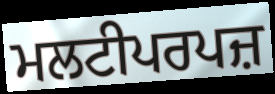
ਮਲਟੀਪਰਪਜ਼